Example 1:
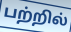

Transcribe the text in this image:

பற்றில்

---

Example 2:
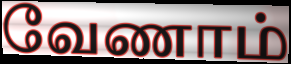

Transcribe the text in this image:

வேணாம்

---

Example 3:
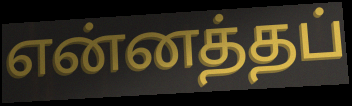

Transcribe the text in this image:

என்னத்தப்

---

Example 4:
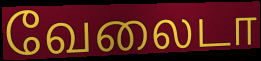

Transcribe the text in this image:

வேலைடா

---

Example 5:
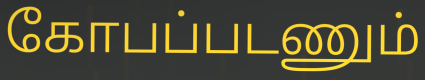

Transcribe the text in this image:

கோபப்படணும்